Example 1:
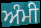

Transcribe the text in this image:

ਅੰਮੀ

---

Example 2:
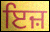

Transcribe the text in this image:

ਇਜ਼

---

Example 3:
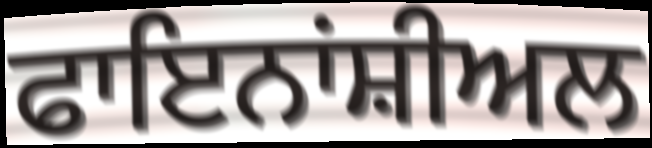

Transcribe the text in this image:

ਫਾਇਨਾਂਸ਼ੀਅਲ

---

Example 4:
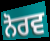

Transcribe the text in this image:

ਨੋਰਵ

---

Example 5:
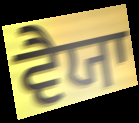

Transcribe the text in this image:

ਵੈਯਾ